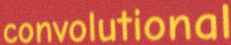
convolutional